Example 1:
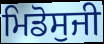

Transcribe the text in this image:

ਮਿਡੋਸੁਜੀ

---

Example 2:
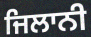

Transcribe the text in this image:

ਜਿਲਾਨੀ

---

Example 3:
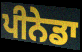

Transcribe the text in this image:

ਪੀਨੇਡਾ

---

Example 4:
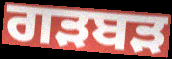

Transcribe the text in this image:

ਗੜਬੜ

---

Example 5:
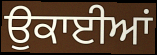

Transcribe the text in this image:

ਉਕਾਈਆਂ